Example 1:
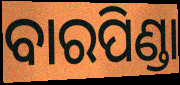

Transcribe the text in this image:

ବାରପିଣ୍ଡା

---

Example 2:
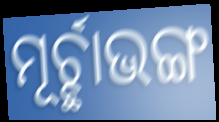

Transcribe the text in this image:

ମୂର୍ଚ୍ଛାଭଙ୍ଗ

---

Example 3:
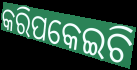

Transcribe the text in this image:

କରିପକେଇଚି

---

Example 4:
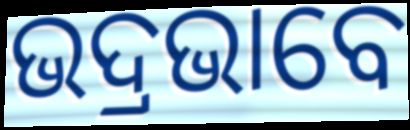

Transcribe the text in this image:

ଭଦ୍ରଭାବେ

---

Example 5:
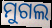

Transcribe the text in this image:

ମୁଗଲ